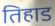
तिहाड